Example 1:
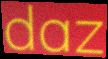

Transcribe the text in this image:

daz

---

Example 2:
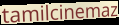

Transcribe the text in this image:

tamilcinemaz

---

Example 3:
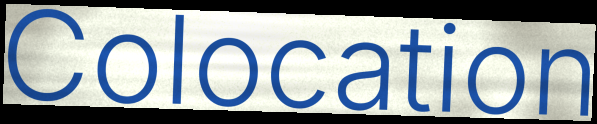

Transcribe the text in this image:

Colocation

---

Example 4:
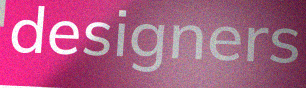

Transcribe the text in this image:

designers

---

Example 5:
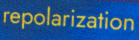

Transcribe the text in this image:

repolarization